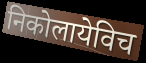
निकोलायेविच